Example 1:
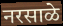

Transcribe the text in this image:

नरसाळे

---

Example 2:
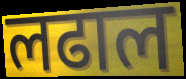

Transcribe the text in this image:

लढाल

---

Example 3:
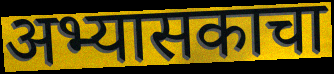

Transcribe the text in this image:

अभ्यासकाचा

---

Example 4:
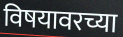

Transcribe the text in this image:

विषयावरच्या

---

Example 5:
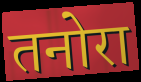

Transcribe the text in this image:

तनोरा